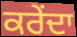
ਕਰੇਂਦਾ